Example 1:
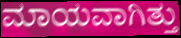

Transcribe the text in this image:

ಮಾಯವಾಗಿತ್ತು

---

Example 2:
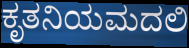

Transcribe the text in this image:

ಕೃತನಿಯಮದಲಿ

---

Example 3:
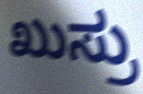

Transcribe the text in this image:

ಖುಸ್ರು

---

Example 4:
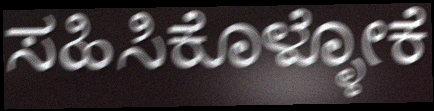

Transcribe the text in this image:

ಸಹಿಸಿಕೊಳ್ಳೋಕೆ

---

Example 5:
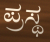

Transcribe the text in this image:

ಪ್ರಸ್ಥ